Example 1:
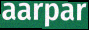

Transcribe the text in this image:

aarpar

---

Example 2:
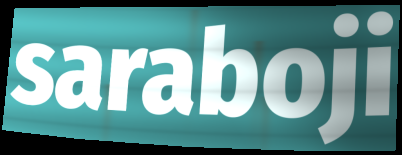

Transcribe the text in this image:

saraboji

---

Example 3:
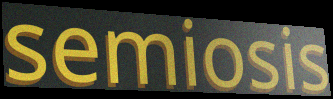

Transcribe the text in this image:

semiosis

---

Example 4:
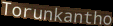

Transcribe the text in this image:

Torunkantho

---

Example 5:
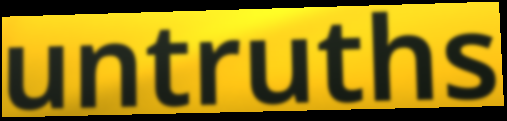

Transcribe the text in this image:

untruths